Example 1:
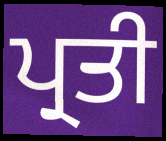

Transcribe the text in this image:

ਪ੍ਰ੍ਰਤੀ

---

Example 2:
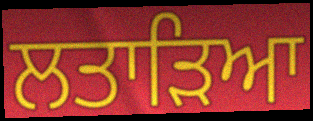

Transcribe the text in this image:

ਲਤਾੜਿਆ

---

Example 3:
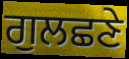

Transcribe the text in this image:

ਗੁਲਛਣੇ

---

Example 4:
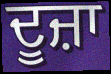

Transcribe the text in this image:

ਦੂਜ਼ਾ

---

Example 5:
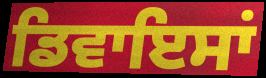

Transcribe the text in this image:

ਡਿਵਾਇਸਾਂ